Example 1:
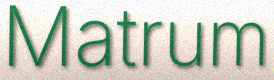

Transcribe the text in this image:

Matrum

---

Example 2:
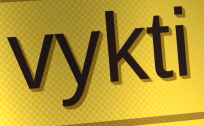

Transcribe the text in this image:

vykti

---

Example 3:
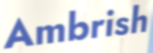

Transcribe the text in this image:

Ambrish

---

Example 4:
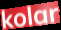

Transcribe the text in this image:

kolar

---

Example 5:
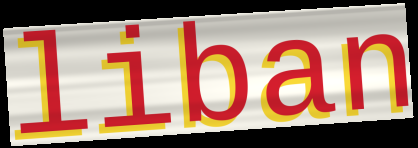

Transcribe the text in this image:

liban